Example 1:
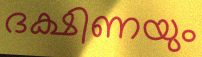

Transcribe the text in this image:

ദക്ഷിണയും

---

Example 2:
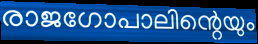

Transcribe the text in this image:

രാജഗോപാലിന്റെയും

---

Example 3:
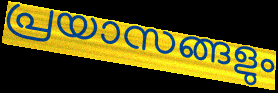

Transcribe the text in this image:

പ്രയാസങ്ങളും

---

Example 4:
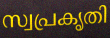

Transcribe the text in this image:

സ്വപ്രകൃതി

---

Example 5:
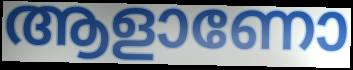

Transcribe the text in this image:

ആളാണോ